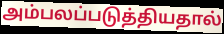
அம்பலப்படுத்தியதால்